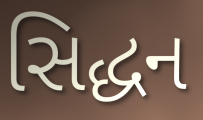
સિદ્ધન